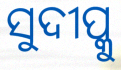
ସୁଦୀପ୍କୁ